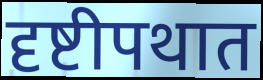
दृष्टीपथात